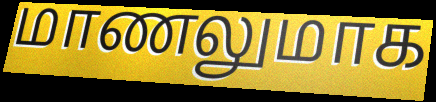
மாணலுமாக